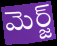
మెర్జ్